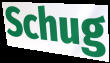
Schug